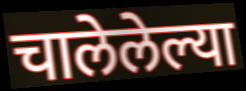
चालेलेल्या